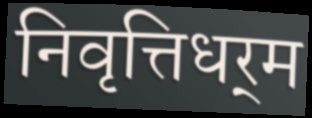
निवृत्तिधर्म